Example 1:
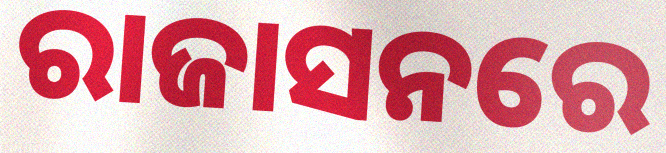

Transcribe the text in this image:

ରାଜାସନରେ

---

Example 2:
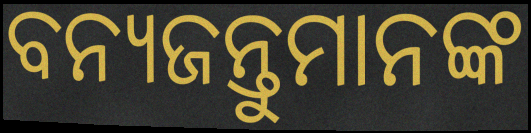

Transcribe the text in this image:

ବନ୍ୟଜନ୍ତୁମାନଙ୍କ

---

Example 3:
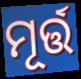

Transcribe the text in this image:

ମୂର୍ତ୍ତ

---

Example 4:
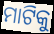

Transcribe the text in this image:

ମାଟିକୁ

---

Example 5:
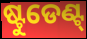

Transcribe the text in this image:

ଷ୍ଟୁଡେଣ୍ଟ୍